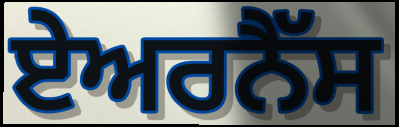
ਏਅਰਨੈੱਸ